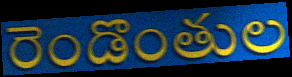
రెండొంతుల